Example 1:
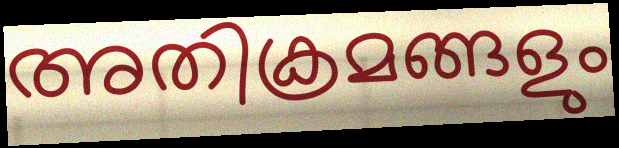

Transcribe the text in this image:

അതിക്രമങ്ങളും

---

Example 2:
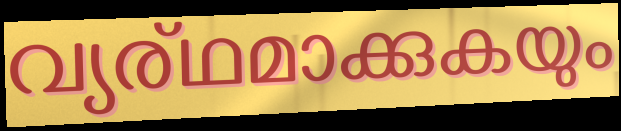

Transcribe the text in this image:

വ്യര്ഥമാക്കുകയും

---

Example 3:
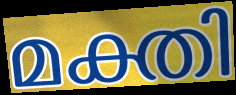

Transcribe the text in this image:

മക്തി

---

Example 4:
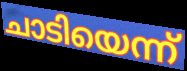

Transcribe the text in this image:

ചാടിയെന്ന്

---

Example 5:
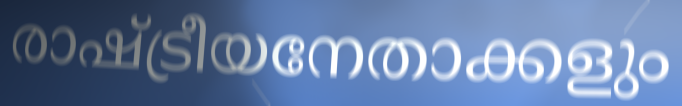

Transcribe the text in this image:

രാഷ്ട്രീയനേതാക്കളും